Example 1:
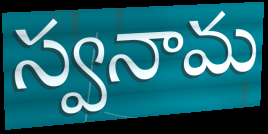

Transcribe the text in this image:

స్వనామ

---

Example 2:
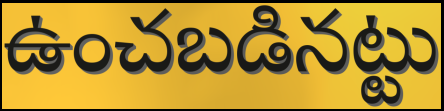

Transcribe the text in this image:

ఉంచబడినట్టు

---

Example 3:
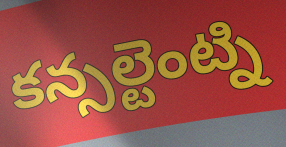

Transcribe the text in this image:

కన్సల్టెంట్ని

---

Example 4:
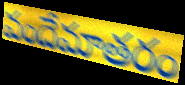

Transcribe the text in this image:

వందేమాతరం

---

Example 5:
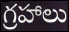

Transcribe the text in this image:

గ్రహాలు